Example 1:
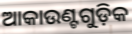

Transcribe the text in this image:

ଆକାଉଣ୍ଟଗୁଡ଼ିକ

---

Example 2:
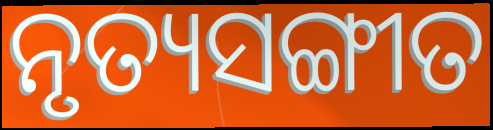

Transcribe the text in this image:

ନୃତ୍ୟସଙ୍ଗୀତ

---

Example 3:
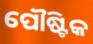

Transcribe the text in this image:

ପୌଷ୍ଟିକ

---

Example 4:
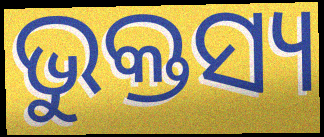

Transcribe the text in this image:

ଭୁକ୍ତସ୍ୟ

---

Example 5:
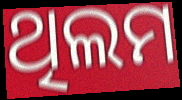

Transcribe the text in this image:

ଥିଲମ